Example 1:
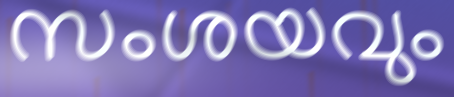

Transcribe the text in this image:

സംശയവും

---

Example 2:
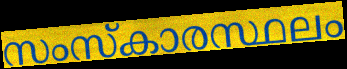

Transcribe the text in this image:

സംസ്കാരസ്ഥലം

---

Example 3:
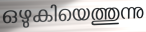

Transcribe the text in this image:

ഒഴുകിയെത്തുന്നു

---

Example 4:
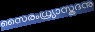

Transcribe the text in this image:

സൈരംധ്ര്യാസ്തദനു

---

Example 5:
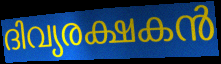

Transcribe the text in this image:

ദിവ്യരക്ഷകൻ